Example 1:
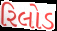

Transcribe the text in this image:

રિલોડ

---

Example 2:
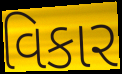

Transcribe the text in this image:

વિકાર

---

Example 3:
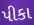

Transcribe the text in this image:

પીકા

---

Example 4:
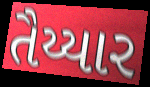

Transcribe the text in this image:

તૈય્યાર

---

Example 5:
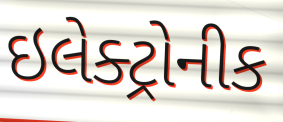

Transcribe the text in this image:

ઇલેક્ટ્રોનીક